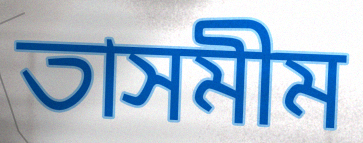
তাসমীম